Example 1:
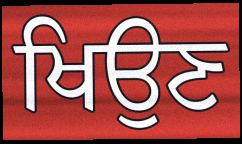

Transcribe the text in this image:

ਖਿਉਣ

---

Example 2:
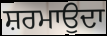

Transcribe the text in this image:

ਸ਼ਰਮਾਉਦਾ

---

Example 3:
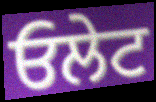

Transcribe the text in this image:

ਓਲੇਟ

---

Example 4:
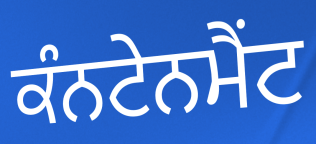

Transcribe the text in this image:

ਕੰਨਟੇਨਮੈਂਟ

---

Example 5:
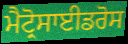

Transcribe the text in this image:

ਮੈਟ੍ਰੋਸਾਈਡਰੋਸ